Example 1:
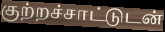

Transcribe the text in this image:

குற்றச்சாட்டுடன்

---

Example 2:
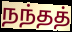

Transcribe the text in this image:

நந்தத்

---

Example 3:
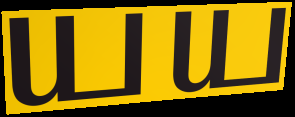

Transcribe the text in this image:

யய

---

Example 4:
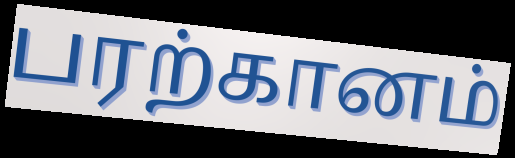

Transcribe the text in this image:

பரற்கானம்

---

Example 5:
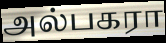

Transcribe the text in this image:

அல்பகரா